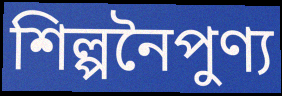
শিল্পনৈপুণ্য